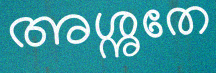
അശ്നുതേ